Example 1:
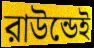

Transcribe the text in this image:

রাউন্ডেই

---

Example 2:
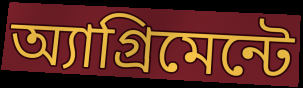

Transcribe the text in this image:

অ্যাগ্রিমেন্টে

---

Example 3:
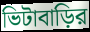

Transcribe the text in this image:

ভিটাবাড়ির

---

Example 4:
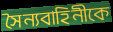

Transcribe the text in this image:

সৈন্যবাহিনীকে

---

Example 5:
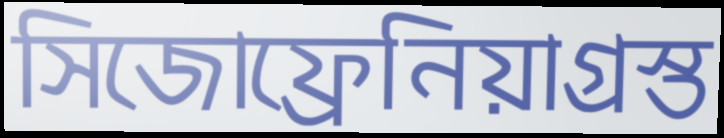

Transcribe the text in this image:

সিজোফ্রেনিয়াগ্রস্ত